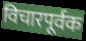
विचारपूर्वक